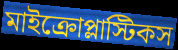
মাইক্রোপ্লাস্টিকস